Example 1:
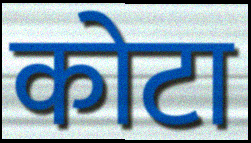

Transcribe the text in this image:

कोटा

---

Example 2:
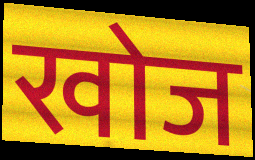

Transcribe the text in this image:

खोज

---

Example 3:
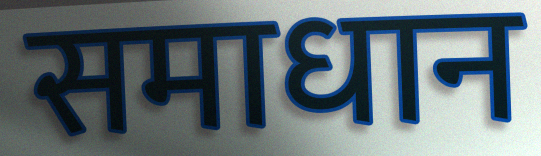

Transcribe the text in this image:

समाधान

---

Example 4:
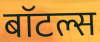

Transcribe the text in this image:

बॉटल्स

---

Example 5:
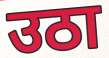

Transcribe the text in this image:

उठा